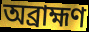
অব্রাহ্মণ